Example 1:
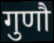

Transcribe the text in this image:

गुणौ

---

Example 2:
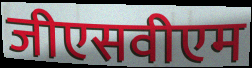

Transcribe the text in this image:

जीएसवीएम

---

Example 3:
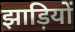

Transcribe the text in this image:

झाड़ियों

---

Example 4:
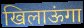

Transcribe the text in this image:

खिलाऊंगा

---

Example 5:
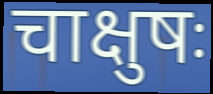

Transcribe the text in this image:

चाक्षुषः